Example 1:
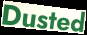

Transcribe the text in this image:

Dusted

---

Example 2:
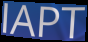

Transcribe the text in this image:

IAPT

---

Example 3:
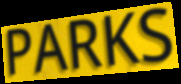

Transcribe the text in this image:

PARKS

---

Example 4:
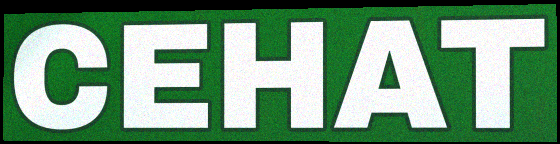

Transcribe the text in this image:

CEHAT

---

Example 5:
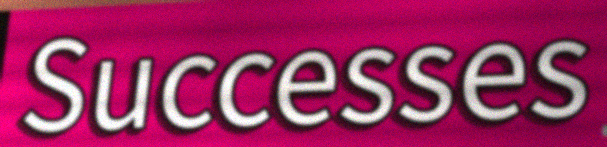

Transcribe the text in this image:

Successes